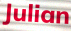
Julian